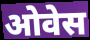
ओवेस